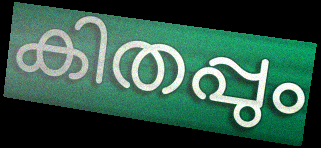
കിതപ്പും